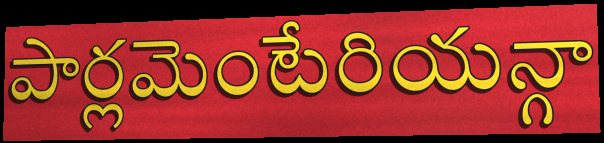
పార్లమెంటేరియన్గా